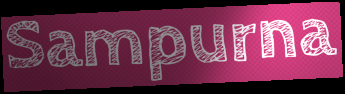
Sampurna